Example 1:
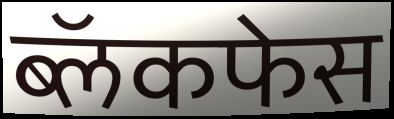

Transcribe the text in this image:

ब्लॅकफेस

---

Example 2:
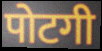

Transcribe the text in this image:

पोटगी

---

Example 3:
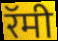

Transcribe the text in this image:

रॅमी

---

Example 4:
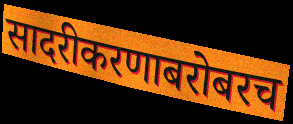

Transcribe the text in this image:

सादरीकरणाबरोबरच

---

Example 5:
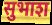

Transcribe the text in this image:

सुभाश